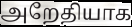
அறேதியாக